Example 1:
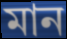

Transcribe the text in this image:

মান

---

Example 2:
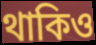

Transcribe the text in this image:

থাকিও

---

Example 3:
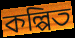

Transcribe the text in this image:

কল্পিত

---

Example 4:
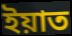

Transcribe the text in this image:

ইয়াত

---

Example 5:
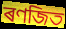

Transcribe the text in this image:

ৰণজিত